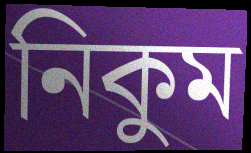
নিকুম